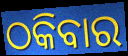
ଠକିବାର